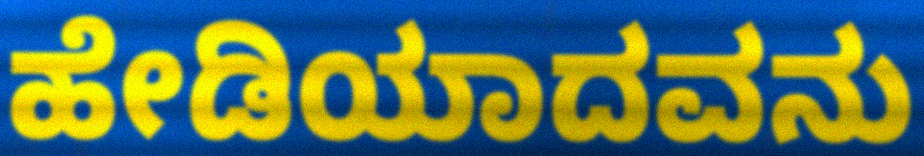
ಹೇಡಿಯಾದವನು